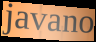
javano